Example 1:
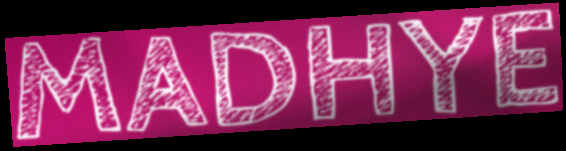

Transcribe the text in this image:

MADHYE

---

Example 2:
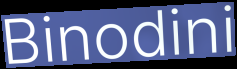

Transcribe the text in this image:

Binodini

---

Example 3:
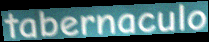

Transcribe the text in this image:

tabernaculo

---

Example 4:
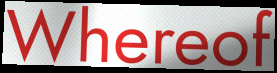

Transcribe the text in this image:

Whereof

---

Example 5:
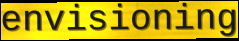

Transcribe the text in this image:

envisioning